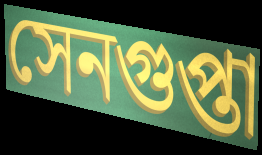
সেনগুপ্তা